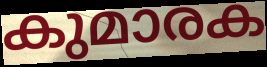
കുമാരക